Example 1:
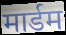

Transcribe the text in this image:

मार्डम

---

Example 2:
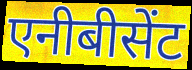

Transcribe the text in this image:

एनीबीसेंट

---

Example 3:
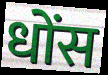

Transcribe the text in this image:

धोंस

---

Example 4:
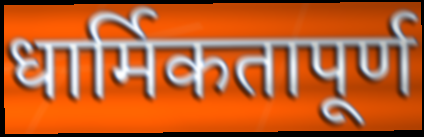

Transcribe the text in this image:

धार्मिकतापूर्ण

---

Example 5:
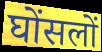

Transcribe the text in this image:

घोंसलों